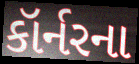
કૉર્નરના